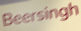
Beersingh